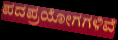
ಪದಪ್ರಯೋಗಗಳಿವೆ